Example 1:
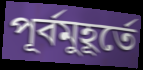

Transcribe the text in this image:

পূর্বমুহূর্তে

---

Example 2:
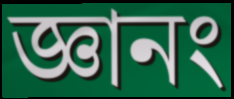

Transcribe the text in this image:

জ্ঞানং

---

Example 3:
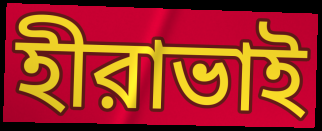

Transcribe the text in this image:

হীরাভাই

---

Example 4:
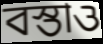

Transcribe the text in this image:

বস্তাও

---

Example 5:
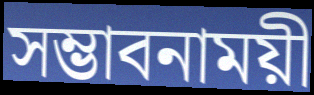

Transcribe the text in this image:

সম্ভাবনাময়ী